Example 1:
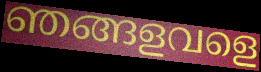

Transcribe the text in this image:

ഞങ്ങളവളെ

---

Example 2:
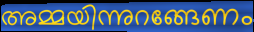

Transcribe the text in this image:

അമ്മയിന്നുറങ്ങേണം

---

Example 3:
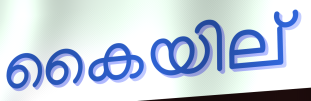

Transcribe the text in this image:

കൈയില്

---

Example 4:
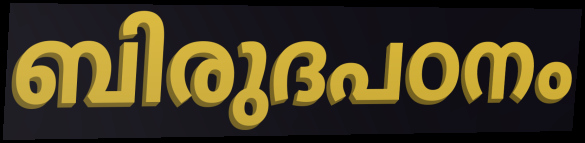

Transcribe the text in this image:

ബിരുദപഠനം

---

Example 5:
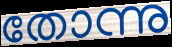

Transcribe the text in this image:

തോന്നു